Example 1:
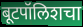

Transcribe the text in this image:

बूटपॉलिशचा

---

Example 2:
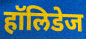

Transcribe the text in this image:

हॉलिडेज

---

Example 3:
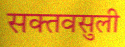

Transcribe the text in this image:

सक्तवसुली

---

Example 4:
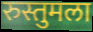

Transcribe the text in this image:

रुस्तुमला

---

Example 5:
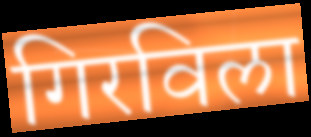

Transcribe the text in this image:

गिरविला